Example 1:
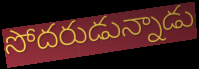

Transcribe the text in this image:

సోదరుడున్నాడు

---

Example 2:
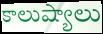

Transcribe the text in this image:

కాలుష్యాలు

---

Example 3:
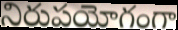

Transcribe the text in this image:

నిరుపయోగంగా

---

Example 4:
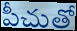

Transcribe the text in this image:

పీచుతో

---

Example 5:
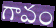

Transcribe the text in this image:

గావం